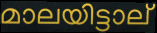
മാലയിട്ടാല്